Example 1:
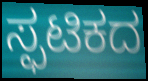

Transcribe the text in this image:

ಸ್ಫಟಿಕದ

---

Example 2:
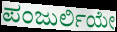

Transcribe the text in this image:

ಪಂಜುರ್ಲಿಯೇ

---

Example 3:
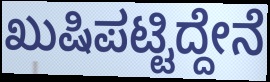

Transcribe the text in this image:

ಖುಷಿಪಟ್ಟಿದ್ದೇನೆ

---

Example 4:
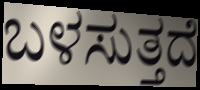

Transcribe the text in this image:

ಬಳಸುತ್ತದೆ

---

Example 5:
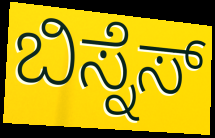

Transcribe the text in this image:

ಬಿಸ್ನೆಸ್